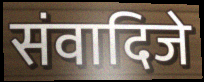
संवादिजे